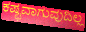
ಕಷ್ಟವಾಗುವುದಿಲ್ಲ